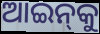
ଆଇନ୍‍କୁ